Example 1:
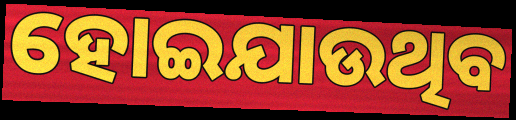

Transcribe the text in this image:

ହୋଇଯାଉଥିବ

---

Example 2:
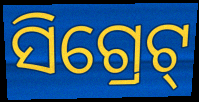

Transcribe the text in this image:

ସିଗ୍ରେଟ୍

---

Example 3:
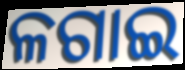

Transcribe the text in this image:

ଳଗାଇ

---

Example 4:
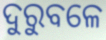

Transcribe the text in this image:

ଦୁରୁବଳେ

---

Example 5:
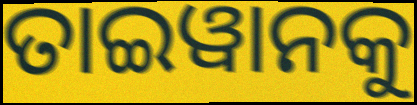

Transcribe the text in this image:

ତାଇୱାନକୁ